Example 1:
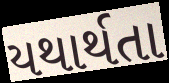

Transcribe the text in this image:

યથાર્થતા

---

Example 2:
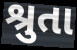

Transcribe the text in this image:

શ્રુતા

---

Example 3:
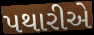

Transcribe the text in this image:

પથારીએ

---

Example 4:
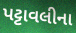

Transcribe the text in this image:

પટ્ટાવલીના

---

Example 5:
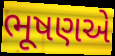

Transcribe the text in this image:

ભૂષણએ